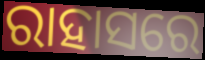
ରାହାସରେ